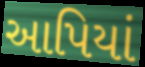
આપિયાં